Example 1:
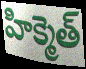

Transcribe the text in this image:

హిక్మెత్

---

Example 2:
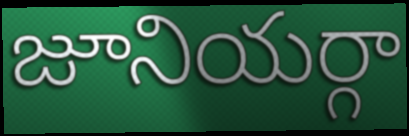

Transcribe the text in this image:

జూనియర్గా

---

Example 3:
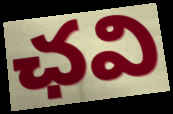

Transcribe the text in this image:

ఛవి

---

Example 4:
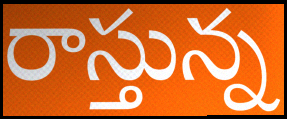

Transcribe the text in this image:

రాస్తున్న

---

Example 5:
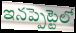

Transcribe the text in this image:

ఇనప్పెట్టెలో